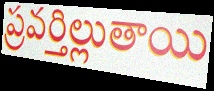
ప్రవర్తిల్లుతాయి